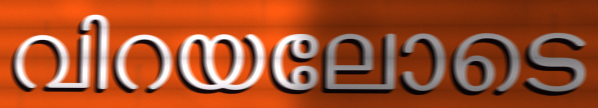
വിറയലോടെ